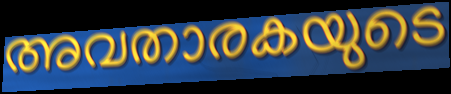
അവതാരകയുടെ